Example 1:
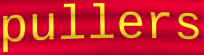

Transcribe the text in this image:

pullers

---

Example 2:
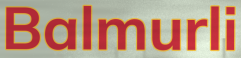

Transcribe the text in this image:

Balmurli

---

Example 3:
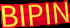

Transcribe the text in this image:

BIPIN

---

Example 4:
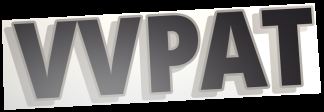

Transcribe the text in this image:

VVPAT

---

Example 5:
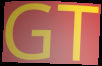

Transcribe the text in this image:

GT